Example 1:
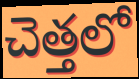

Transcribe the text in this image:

చెత్తలో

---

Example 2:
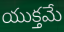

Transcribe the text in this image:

యుక్తమే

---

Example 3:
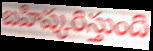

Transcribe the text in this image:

బహిష్కరిస్తుంది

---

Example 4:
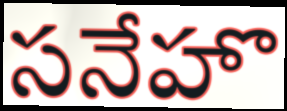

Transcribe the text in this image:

సనేహొ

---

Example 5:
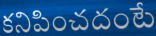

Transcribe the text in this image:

కనిపించదంటే